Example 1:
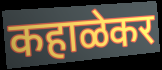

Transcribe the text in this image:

कहाळेकर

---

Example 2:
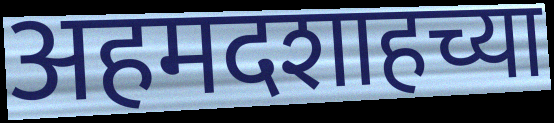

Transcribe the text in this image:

अहमदशाहच्या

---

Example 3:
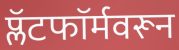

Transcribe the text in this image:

प्लॅटफॉर्मवरून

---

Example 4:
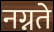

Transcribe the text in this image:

नग्नते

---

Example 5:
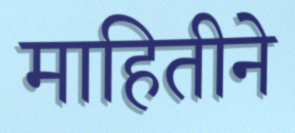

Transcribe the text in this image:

माहितीने